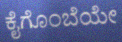
ಕೈಗೊಂಬೆಯೇ